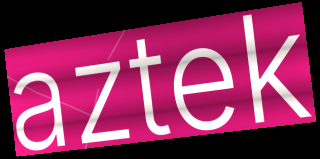
aztek